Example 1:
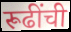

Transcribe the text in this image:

रूढींची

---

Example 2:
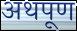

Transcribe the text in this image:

अथपूण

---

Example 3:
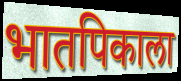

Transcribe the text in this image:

भातपिकाला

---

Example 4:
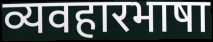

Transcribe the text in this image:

व्यवहारभाषा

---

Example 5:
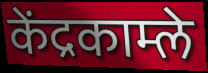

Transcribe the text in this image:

केंद्रकाम्ले